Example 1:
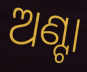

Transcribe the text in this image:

ଅଣ୍ଟା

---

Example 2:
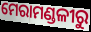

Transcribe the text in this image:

ମେରାମଣ୍ଡଳୀରୁ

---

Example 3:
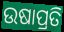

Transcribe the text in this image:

ଉଷାପ୍ରତି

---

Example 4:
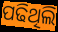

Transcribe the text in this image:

ପଢିଥିଲି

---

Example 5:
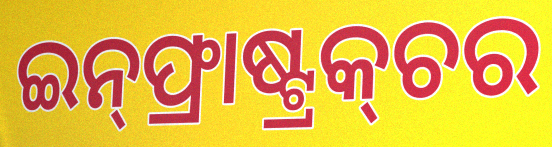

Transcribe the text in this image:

ଇନ୍‌ଫ୍ରାଷ୍ଟ୍ରକ୍‌ଚର